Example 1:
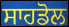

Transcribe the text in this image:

ਸਾਹਡੋਲ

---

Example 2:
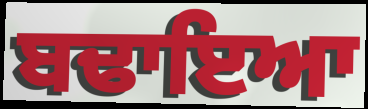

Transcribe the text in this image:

ਬਢਾਇਆ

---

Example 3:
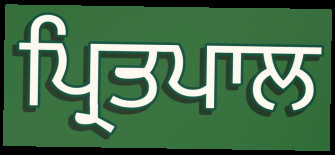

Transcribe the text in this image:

ਪ੍ਰਿਤਪਾਲ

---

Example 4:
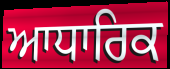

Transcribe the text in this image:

ਆਧਾਰਿਕ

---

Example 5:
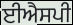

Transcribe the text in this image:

ਈਐਸਪੀ